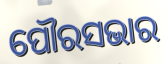
ପୌରସଭାର